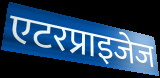
एटरप्राइजेज